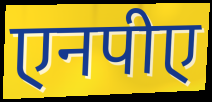
एनपीए